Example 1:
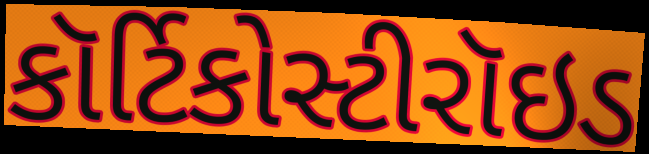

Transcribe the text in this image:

કૉર્ટિકોસ્ટીરૉઇડ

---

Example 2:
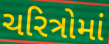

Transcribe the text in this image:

ચરિત્રોમાં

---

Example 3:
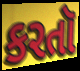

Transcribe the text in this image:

કરતૉ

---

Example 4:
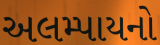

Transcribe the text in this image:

અલમ્પાયનો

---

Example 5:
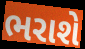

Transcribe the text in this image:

ભરાશે